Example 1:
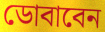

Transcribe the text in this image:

ডোবাবেন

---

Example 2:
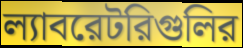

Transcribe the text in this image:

ল্যাবরেটরিগুলির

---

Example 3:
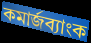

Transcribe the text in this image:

কমার্জব্যাংক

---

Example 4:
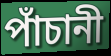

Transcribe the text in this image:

পাঁচানী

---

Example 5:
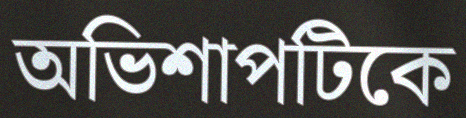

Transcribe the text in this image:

অভিশাপটিকে